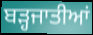
ਬੜ੍ਹਜਾਤੀਆਂ